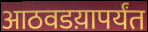
आठवडय़ापर्यंत